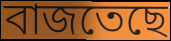
বাজতেছে